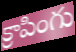
క్రాపింగు